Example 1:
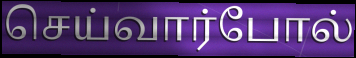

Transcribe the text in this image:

செய்வார்போல்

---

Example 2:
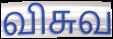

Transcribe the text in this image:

விசுவ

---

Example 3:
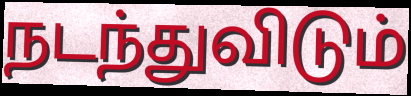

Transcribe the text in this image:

நடந்துவிடும்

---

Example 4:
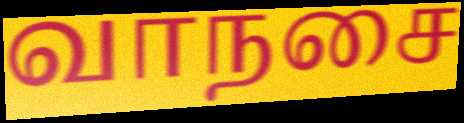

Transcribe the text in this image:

வாநசை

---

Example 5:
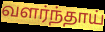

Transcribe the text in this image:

வளர்ந்தாய்